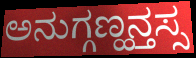
ಅನುಗ್ಗಣ್ಹನ್ತಸ್ಸ